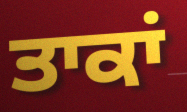
ਤਾਕਾਂ